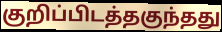
குறிப்பிடத்தகுந்தது